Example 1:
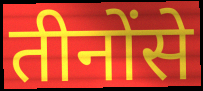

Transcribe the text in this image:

तीनोंसे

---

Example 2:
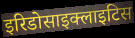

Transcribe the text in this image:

इरिडोसाइक्लाइटिस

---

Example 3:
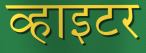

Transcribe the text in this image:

व्हाइटर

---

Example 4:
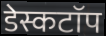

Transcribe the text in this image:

डेस्कटॉप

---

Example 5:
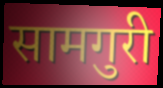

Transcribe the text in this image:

सामगुरी